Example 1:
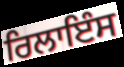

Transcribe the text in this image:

ਰਿਲਾਇੰਸ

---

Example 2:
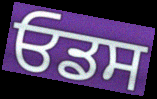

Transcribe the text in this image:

ਓਡਸ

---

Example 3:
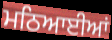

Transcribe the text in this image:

ਮਠਿਆਈਆਂ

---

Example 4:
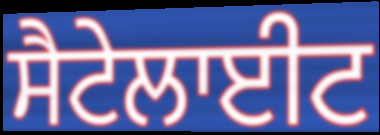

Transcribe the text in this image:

ਸੈਟੇਲਾਈਟ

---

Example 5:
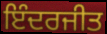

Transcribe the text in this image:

ਇੰਦਰਜੀਤ